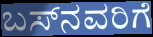
ಬಸ್‌ನವರಿಗೆ